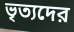
ভৃত্যদের